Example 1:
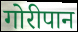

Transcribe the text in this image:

गोरीपान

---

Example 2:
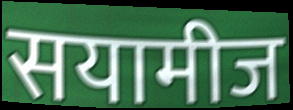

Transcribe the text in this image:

सयामीज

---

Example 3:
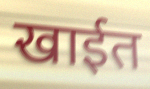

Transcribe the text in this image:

खाईत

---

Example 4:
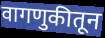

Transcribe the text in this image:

वागणुकीतून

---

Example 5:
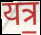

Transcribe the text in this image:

यत्र॒